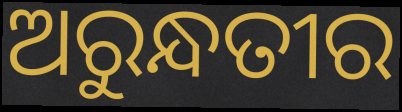
ଅରୁନ୍ଧତୀର